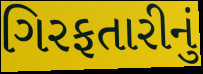
ગિરફતારીનું